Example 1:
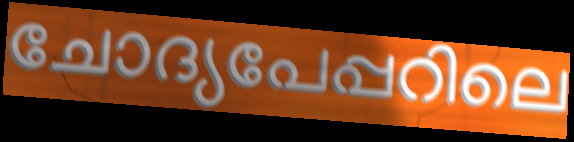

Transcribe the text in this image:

ചോദ്യപേപ്പറിലെ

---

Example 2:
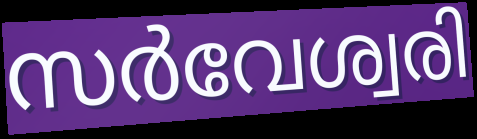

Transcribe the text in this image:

സർവേശ്വരി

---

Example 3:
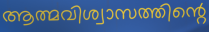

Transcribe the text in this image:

ആത്മവിശ്വാസത്തിന്റെ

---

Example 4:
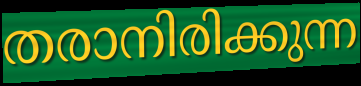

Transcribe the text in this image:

തരാനിരിക്കുന്ന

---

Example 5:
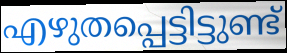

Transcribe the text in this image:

എഴുതപ്പെട്ടിട്ടുണ്ട്